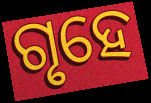
ଗୃହେ